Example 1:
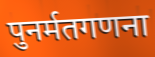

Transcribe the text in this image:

पुनर्मतगणना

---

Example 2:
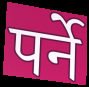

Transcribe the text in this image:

पर्ने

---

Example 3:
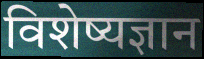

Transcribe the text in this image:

विशेष्यज्ञान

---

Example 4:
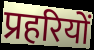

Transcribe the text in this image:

प्रहरियों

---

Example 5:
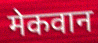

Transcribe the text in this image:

मेकवान